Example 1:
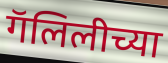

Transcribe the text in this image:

गॅलिलीच्या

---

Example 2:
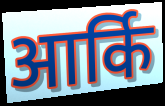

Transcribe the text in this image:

आर्कि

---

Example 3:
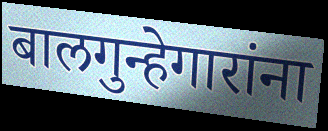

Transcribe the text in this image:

बालगुन्हेगारांना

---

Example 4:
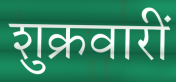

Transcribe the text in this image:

शुक्रवारीं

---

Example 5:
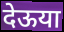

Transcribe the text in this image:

देऊया